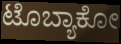
ಟೊಬ್ಯಾಕೋ